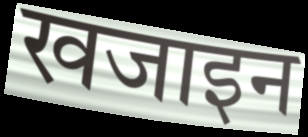
खजाइन